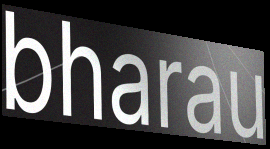
bharau